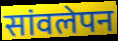
सांवलेपन